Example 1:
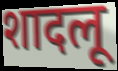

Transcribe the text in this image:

शादलू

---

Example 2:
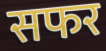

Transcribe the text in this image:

सफर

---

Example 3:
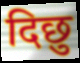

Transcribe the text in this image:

दिछु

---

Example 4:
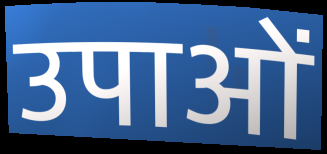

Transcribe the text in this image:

उपाओं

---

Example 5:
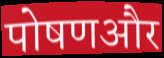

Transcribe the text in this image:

पोषणऔर